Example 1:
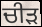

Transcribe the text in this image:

ਚੀੜ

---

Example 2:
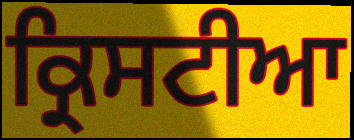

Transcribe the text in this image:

ਕ੍ਰਿਸਟੀਆ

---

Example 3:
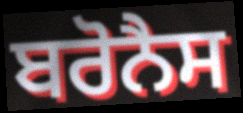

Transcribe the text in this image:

ਬਰੋਨੈਸ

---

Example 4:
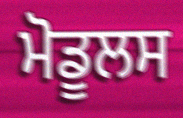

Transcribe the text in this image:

ਮੋਡੂਲਸ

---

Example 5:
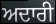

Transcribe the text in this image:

ਅਦਾਰੀ